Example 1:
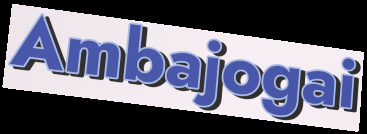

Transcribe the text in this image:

Ambajogai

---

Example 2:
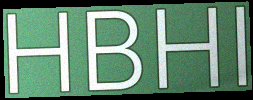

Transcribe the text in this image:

HBHI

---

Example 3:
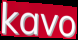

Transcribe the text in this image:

kavo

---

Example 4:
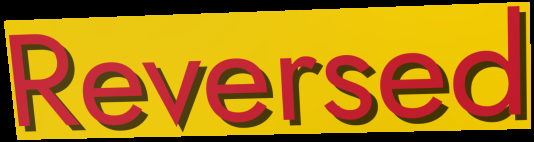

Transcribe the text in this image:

Reversed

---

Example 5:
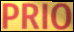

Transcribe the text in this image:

PRIO